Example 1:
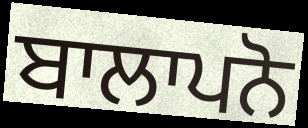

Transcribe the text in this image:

ਬਾਲਾਪਨੋ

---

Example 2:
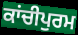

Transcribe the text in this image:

ਕਾਂਚੀਪੁਰਮ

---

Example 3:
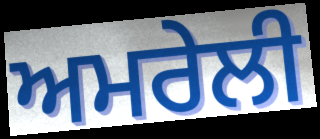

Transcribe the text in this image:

ਅਮਰੇਲੀ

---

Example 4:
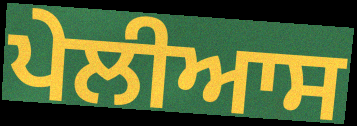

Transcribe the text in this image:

ਪੇਲੀਆਸ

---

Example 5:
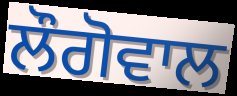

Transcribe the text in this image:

ਲੌਗੋਵਾਲ